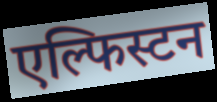
एल्फिस्टन